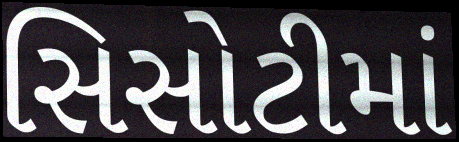
સિસોટીમાં